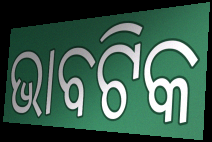
ଭାବଟିକ